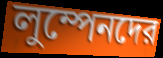
লুম্পেনদের